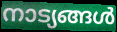
നാട്യങ്ങൾ